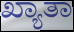
ಖ್ಯಾತಾ